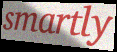
smartly